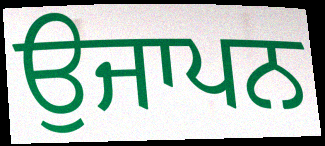
ਉਜਾਪਨ